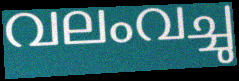
വലംവച്ചു